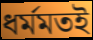
ধর্মমতই